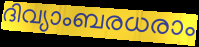
ദിവ്യാംബരധരാം